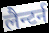
लैन्टर्न